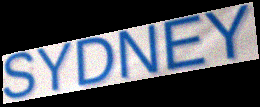
SYDNEY